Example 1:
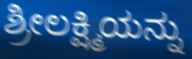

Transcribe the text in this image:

ಶ್ರೀಲಕ್ಷ್ಮಿಯನ್ನು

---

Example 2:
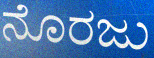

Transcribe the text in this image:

ನೊರಜು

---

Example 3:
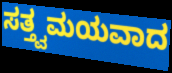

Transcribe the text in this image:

ಸತ್ತ್ವಮಯವಾದ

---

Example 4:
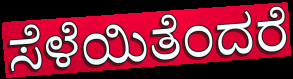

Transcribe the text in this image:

ಸೆಳೆಯಿತೆಂದರೆ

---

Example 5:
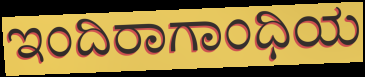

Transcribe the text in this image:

ಇಂದಿರಾಗಾಂಧಿಯ